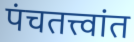
पंचतत्त्वांत